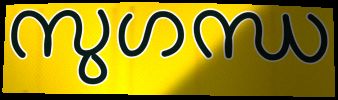
സുഗന്ധ